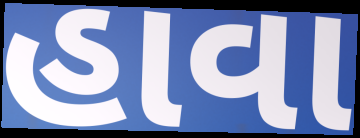
હાવા